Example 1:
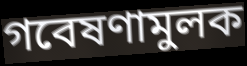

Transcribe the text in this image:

গবেষণামুলক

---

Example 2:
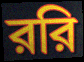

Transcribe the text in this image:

ররি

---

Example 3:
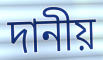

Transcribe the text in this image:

দানীয়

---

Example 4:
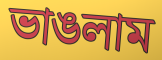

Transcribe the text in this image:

ভাঙলাম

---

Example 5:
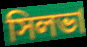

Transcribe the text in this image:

সিলভা